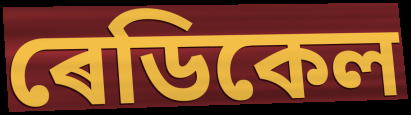
ৰেডিকেল